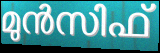
മുൻസിഫ്